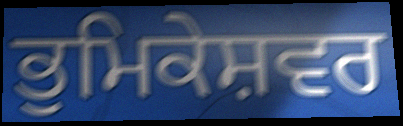
ਭੁਮਿਕੇਸ਼ਵਰ